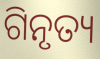
ଗିନୃତ୍ୟ